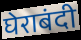
घेराबंदी